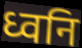
ध्वनि